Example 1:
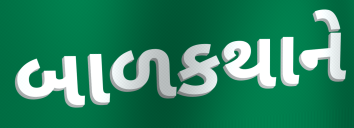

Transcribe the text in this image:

બાળકથાને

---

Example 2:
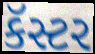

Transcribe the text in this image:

કૅસ્ટર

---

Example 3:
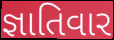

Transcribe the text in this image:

જ્ઞાતિવાર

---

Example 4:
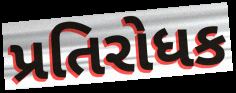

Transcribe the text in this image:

પ્રતિરોધક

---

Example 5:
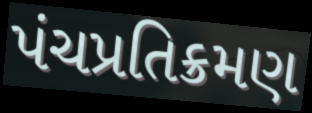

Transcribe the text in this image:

પંચપ્રતિક્રમણ